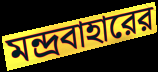
মন্দ্রবাহারের